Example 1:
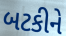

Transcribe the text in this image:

બટકીને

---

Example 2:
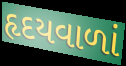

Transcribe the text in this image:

હૃદયવાળાં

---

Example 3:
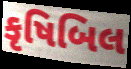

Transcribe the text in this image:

કૃષિબિલ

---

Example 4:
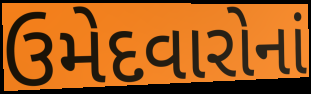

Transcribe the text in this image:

ઉમેદવારોનાં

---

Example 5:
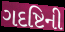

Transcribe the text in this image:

ગદષ્ટિની